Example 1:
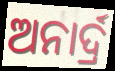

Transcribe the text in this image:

ଅନାର୍ଦ୍ର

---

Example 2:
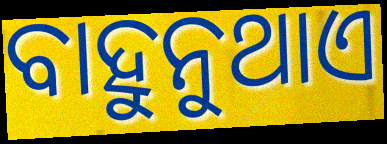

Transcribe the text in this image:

ବାହୁନୁଥାଏ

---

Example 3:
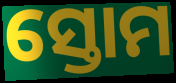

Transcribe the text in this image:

ସ୍ତୋମ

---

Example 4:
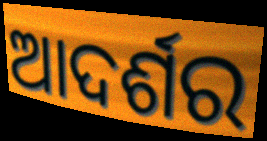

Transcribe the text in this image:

ଆଦର୍ଶର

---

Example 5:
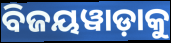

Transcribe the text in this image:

ବିଜୟୱାଡ଼ାକୁ